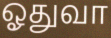
ஓதுவா